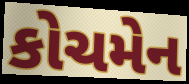
કોચમેન